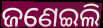
ଜଣେଇଲି